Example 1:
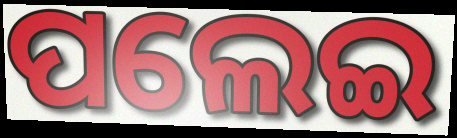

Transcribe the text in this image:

ପଲେଇ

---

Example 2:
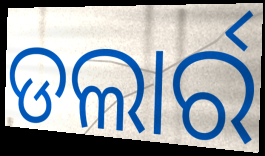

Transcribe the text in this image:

ଡଲାର୍ର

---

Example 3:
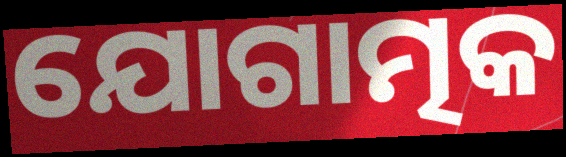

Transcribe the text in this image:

ଯୋଗାତ୍ମକ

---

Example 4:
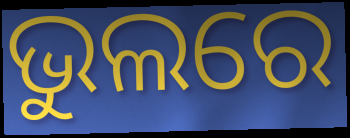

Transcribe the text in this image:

ଭୁଲରେ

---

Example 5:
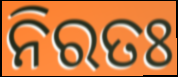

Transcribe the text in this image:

ନିରତଃ